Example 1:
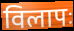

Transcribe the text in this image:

विलापः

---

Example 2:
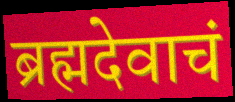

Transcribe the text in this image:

ब्रह्मदेवाचं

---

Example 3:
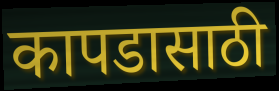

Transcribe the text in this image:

कापडासाठी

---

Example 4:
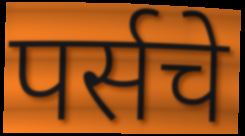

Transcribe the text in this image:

पर्सचे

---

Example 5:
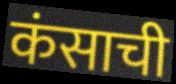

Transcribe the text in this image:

कंसाची